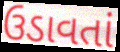
ઉડાવતાં